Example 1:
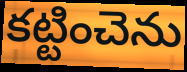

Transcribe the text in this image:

కట్టించెను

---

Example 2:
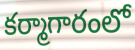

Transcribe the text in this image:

కర్మాగారంలో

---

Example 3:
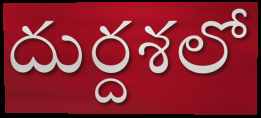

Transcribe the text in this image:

దుర్దశలో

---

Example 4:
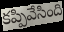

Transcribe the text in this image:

కప్పివేసింది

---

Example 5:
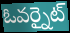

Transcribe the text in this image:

ఓవర్నైట్